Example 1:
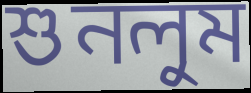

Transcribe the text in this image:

শুনলুম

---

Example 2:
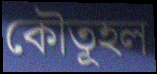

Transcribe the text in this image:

কৌতূহল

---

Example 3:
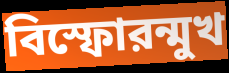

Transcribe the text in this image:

বিস্ফোরন্মুখ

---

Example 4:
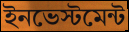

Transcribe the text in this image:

ইনভেস্টমেন্ট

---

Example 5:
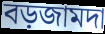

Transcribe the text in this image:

বড়জামদা